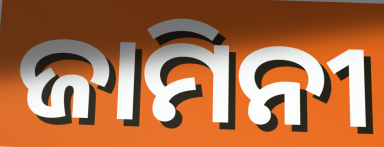
ଜାମିନୀ